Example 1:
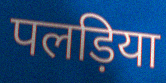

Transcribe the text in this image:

पलड़िया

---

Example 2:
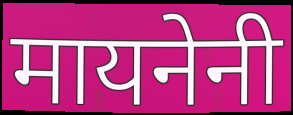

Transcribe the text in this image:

मायनेनी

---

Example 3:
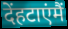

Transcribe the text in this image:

देंहटाएंमैं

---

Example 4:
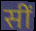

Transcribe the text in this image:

सीं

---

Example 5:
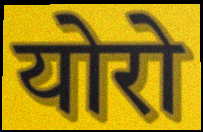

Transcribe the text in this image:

योरो